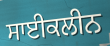
ਸਾਈਕਲੀਨ